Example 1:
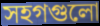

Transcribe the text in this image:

সহগগুলো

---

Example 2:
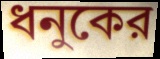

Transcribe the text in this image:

ধনুকের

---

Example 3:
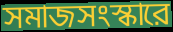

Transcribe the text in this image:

সমাজসংস্কারে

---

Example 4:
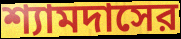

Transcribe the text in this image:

শ্যামদাসের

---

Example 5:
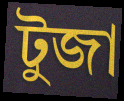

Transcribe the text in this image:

টুজা